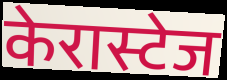
केरास्टेज